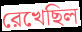
রেখেছিল